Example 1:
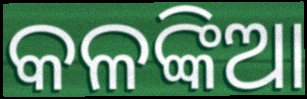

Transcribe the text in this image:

କଳଙ୍କିଆ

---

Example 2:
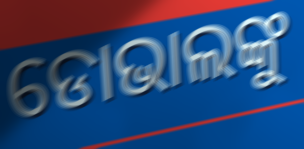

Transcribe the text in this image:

ଡୋଭାଲଙ୍କୁ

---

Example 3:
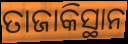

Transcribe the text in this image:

ତାଜାକିସ୍ଥାନ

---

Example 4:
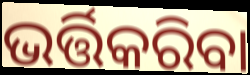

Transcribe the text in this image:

ଭର୍ତ୍ତିକରିବା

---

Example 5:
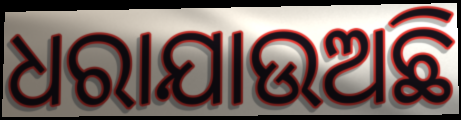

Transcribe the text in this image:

ଧରାଯାଉଅଛି